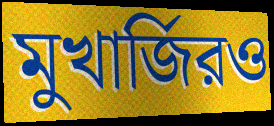
মুখার্জিরও